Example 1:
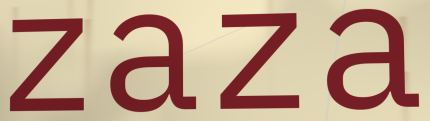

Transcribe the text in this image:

zaza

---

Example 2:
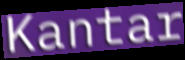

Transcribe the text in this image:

Kantar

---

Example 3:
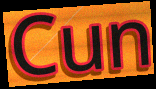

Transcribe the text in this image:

Cun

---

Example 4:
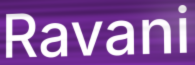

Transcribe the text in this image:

Ravani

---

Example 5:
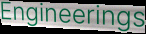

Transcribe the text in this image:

Engineerings